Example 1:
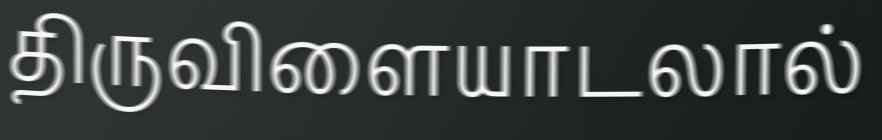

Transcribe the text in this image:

திருவிளையாடலால்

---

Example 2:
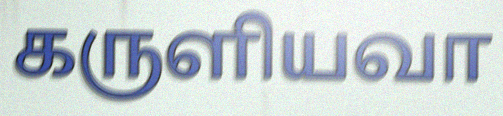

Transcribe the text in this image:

கருளியவா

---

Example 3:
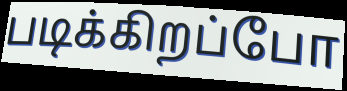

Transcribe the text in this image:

படிக்கிறப்போ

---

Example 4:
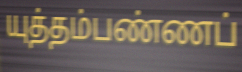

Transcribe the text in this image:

யுத்தம்பண்ணப்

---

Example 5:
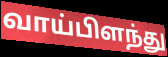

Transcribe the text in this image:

வாய்பிளந்து